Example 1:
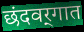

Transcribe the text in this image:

छंदवर्गात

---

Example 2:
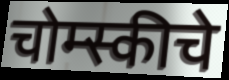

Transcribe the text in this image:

चोम्स्कीचे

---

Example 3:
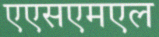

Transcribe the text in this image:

एएसएमएल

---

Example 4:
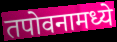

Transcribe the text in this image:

तपोवनामध्ये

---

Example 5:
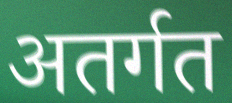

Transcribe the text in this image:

अतर्गत